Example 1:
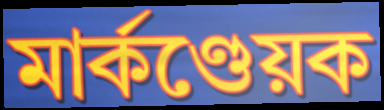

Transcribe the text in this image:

মাৰ্কণ্ডেয়ক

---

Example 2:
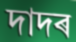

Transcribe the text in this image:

দাদৰ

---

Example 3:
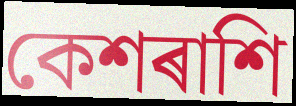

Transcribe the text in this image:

কেশৰাশি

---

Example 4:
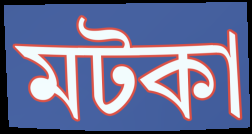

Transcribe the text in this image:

মটকা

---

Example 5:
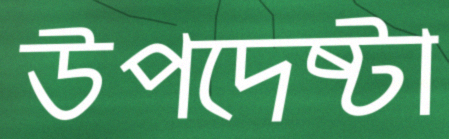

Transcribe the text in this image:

উপদেষ্টা